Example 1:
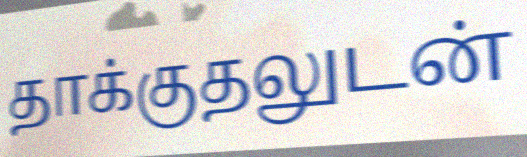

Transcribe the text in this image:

தாக்குதலுடன்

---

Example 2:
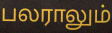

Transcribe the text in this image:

பலராலும்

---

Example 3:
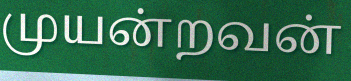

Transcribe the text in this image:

முயன்றவன்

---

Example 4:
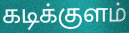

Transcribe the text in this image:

கடிக்குளம்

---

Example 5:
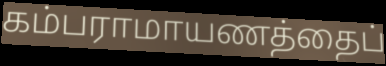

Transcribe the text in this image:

கம்பராமாயணத்தைப்